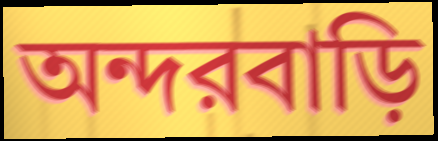
অন্দরবাড়ি